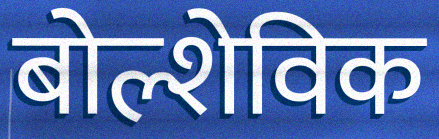
बोल्शेविक